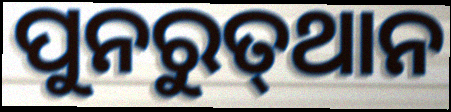
ପୁନରୁତ୍‍ଥାନ